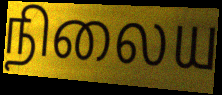
நிலைய